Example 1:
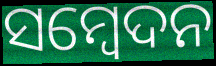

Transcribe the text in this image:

ସମ୍ଵେଦନ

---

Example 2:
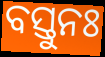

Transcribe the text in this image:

ବସ୍ତୁନଃ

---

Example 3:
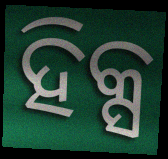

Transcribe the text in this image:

ହିକ୍ସ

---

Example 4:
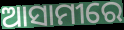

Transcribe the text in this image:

ଆସାମୀରେ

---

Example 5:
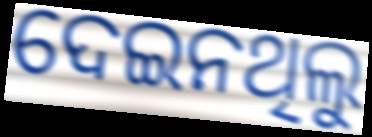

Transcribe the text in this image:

ଦେଇନଥିଲୁ